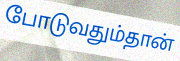
போடுவதும்தான்